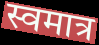
स्वमात्र